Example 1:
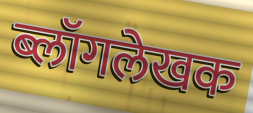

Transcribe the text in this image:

ब्लॉगलेखक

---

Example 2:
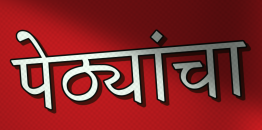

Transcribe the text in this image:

पेठ्यांचा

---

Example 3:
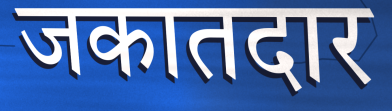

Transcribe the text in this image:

जकातदार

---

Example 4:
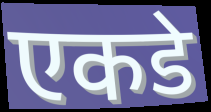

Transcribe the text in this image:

एकडे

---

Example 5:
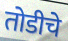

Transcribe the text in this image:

तोडीचे